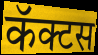
कॅक्टस